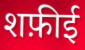
शफ़ीई